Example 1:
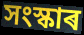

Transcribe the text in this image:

সংস্কাৰ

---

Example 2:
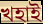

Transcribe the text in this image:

খহাই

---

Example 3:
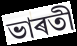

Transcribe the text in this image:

ভাৰতী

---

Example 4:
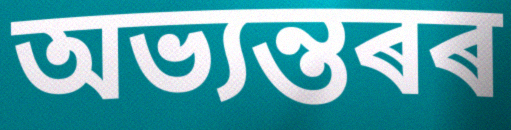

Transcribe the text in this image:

অভ্যন্তৰৰ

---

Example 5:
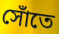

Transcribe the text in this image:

সোঁতে